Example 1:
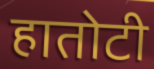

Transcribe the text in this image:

हातोटी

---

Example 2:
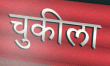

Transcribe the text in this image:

चुकीला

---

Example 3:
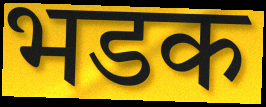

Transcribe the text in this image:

भडक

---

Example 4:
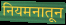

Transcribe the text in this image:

नियमनातून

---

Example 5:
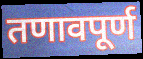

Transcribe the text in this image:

तणावपूर्ण